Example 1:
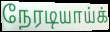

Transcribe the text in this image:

நேரடியாய்க்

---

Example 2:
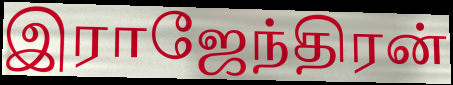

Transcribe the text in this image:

இராஜேந்திரன்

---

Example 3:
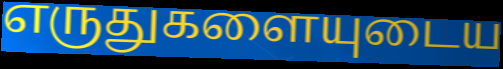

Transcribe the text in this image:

எருதுகளையுடைய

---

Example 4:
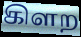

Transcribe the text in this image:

கிளற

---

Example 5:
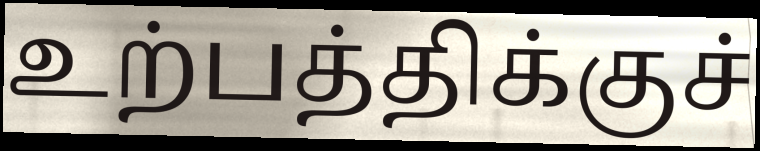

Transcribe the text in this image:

உற்பத்திக்குச்